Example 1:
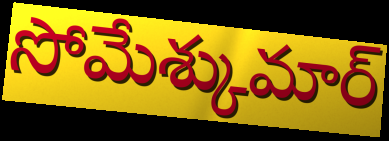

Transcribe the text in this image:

సోమేశ్కుమార్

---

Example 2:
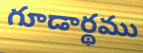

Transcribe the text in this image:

గూడార్థము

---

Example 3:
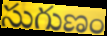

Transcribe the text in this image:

సుగుణం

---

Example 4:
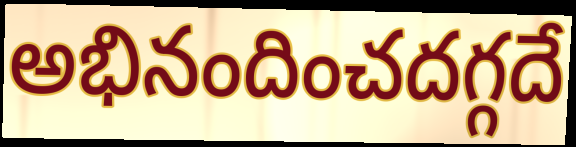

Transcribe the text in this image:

అభినందించదగ్గదే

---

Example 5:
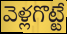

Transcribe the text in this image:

వెళ్లగొట్టే